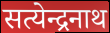
सत्येन्द्रनाथ